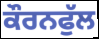
ਕੌਰਨਫੁੱਲ